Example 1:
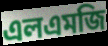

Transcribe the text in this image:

এলএমজি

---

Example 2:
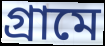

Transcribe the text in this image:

গ্রামে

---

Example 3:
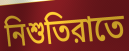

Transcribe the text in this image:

নিশুতিরাতে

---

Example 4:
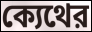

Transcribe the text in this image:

ক্যেথের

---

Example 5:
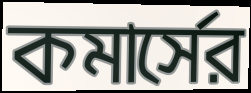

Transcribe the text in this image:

কমার্সের